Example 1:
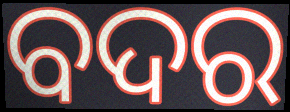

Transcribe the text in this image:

ବଦର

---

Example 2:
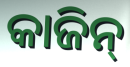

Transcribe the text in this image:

କାଜିନ୍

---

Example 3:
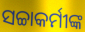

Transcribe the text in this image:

ସଚ୍ଚାକର୍ମୀଙ୍କ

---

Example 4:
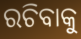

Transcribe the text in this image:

ରଚିବାକୁ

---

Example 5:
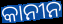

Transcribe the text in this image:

କାନୀନ